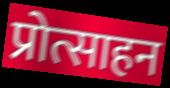
प्रोत्साहन